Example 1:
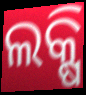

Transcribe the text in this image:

ଲକ୍ଷି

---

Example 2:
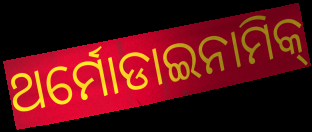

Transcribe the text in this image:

ଥର୍ମୋଡାଇନାମିକ୍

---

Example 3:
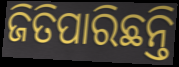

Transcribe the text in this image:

ଜିତିପାରିଛନ୍ତି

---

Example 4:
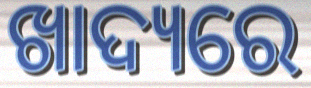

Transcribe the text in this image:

ଖାଦ୍ୟରେ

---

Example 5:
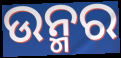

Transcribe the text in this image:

ଉନ୍ମର